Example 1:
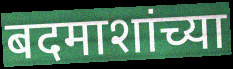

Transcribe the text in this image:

बदमाशांच्या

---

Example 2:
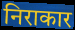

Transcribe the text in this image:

निराकार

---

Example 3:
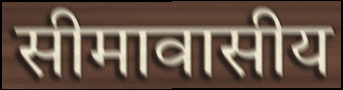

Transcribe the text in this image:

सीमावासीय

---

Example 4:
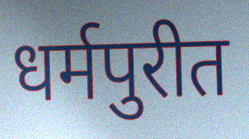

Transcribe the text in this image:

धर्मपुरीत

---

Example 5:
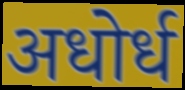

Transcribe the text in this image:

अधोर्ध